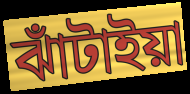
ঝাঁটাইয়া